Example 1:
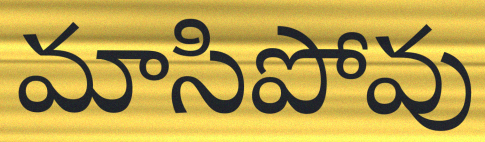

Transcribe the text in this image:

మాసిపోవు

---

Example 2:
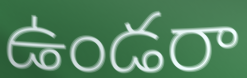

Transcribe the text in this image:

ఉండరా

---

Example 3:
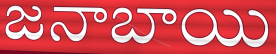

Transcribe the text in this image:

జనాబాయి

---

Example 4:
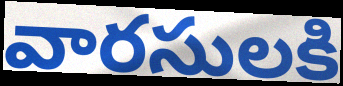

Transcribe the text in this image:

వారసులకి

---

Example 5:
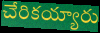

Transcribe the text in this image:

చేరికయ్యారు